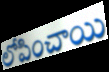
లోపించాయి